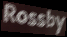
Rossby